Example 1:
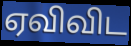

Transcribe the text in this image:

ஏவிவிட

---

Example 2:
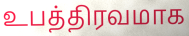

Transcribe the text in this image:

உபத்திரவமாக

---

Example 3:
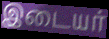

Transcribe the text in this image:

இடையர்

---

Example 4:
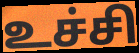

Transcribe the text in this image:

உச்சி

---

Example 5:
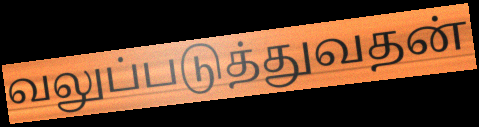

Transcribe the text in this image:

வலுப்படுத்துவதன்